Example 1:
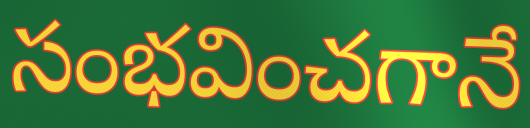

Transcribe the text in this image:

సంభవించగానే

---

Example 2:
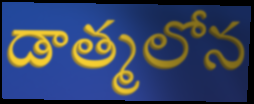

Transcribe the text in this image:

డాత్మలోన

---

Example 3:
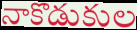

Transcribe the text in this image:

నాకొడుకుల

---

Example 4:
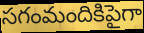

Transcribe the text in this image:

సగంమందికిపైగా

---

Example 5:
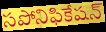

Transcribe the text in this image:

సపోనిఫికేషన్